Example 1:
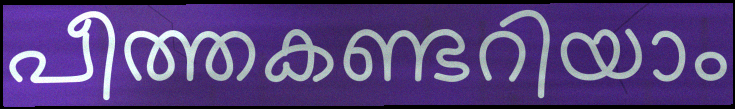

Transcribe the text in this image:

പീത്തകണ്ടറിയാം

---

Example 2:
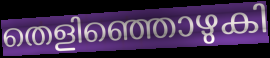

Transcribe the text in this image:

തെളിഞ്ഞൊഴുകി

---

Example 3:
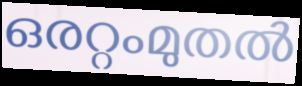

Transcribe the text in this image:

ഒരറ്റംമുതൽ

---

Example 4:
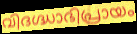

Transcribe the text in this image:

വിദഗ്ദ്ധാഭിപ്രായം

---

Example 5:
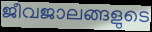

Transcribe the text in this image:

ജീവജാലങ്ങളുടെ